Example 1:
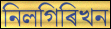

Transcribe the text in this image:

নিলগিৰিখন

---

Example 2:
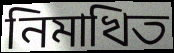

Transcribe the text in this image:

নিমাখিত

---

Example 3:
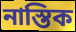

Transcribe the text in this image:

নাস্তিক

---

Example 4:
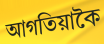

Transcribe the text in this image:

আগতিয়াকৈ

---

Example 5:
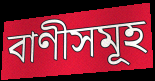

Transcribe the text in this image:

বাণীসমূহ